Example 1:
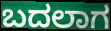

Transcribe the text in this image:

ಬದಲಾಗ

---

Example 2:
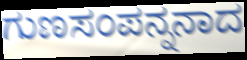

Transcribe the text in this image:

ಗುಣಸಂಪನ್ನನಾದ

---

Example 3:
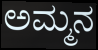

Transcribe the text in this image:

ಅಮ್ಮನ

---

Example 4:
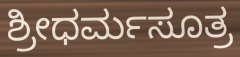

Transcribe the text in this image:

ಶ್ರೀಧರ್ಮಸೂತ್ರ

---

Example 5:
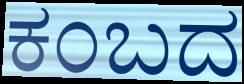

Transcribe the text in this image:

ಕಂಬದ